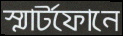
স্মার্টফোনে